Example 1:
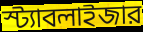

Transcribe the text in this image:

স্ট্যাবলাইজার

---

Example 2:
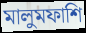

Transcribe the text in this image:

মালুমফাশি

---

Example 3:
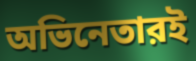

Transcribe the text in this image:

অভিনেতারই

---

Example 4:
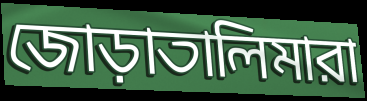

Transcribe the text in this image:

জোড়াতালিমারা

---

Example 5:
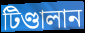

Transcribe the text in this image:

টিণ্ডালান